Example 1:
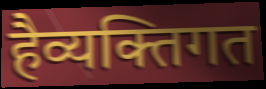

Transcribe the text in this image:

हैव्यक्तिगत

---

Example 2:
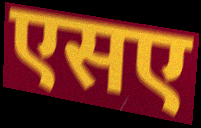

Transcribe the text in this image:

एसए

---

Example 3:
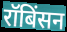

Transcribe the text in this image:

रॉबिंसन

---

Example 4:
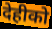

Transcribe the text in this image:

देहीको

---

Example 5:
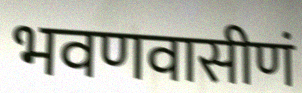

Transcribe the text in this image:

भवणवासीणं